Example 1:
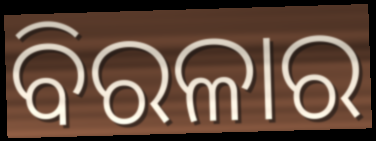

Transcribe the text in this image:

ବିରଳାର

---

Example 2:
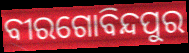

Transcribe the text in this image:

ବୀରଗୋବିନ୍ଦପୁର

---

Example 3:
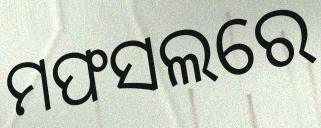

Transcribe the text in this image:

ମଫସଲରେ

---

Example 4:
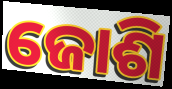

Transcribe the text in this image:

ଜୋଶି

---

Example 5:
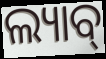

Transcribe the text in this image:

ଲ୍ୟାବ୍